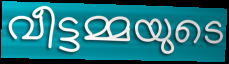
വീട്ടമ്മയുടെ